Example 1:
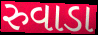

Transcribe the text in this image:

રુવાડા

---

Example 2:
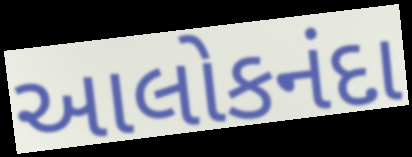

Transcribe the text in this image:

આલોકનંદા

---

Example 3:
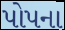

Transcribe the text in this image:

પોપના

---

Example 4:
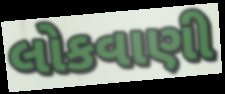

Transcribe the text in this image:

લોકવાણી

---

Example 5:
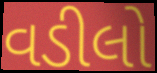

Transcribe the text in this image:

વડીલો